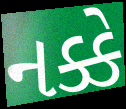
નક્કે